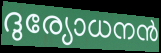
ദുര്യോധനൻ